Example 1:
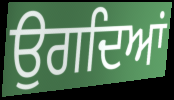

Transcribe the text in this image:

ਉਗਦਿਆਂ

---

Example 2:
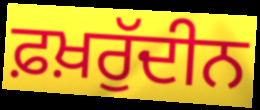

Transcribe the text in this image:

ਫ਼ਖ਼ਰੁੱਦੀਨ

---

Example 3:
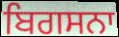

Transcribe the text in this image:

ਬਿਗਸਨਾ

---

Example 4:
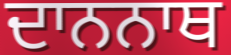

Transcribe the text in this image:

ਦਾਨਨਾਥ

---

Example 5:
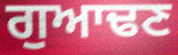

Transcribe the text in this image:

ਗੁਆਢਣ